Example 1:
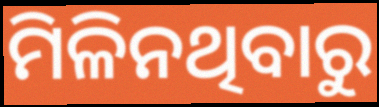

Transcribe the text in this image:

ମିଳିନଥିବାରୁ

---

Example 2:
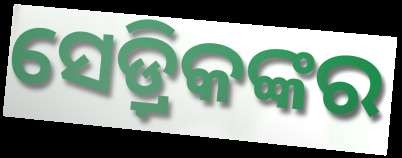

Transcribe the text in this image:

ସେଡ଼୍ରିକଙ୍କର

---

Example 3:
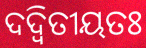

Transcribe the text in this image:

ଦଦ୍ୱିତୀୟତଃ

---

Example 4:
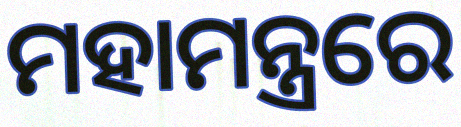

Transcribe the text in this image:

ମହାମନ୍ତ୍ରରେ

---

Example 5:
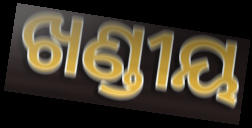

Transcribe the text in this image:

ଖଣ୍ଡୀୟ